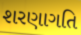
શરણાગતિ